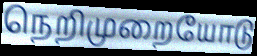
நெறிமுறையோடு